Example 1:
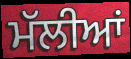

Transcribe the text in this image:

ਮੱਲੀਆਂ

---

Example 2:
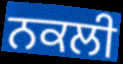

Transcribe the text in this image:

ਨਕਲੀ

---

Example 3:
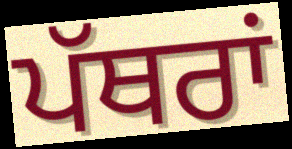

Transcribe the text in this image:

ਪੱਥਰਾਂ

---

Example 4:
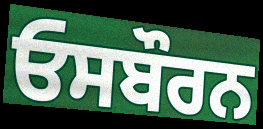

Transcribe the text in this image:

ਓਸਬੌਰਨ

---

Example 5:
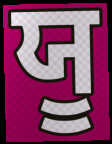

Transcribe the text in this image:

ਯੂ